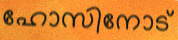
ഹോസിനോട്